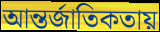
আন্তর্জাতিকতায়